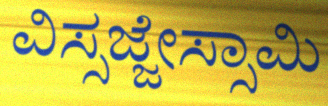
ವಿಸ್ಸಜ್ಜೇಸ್ಸಾಮಿ